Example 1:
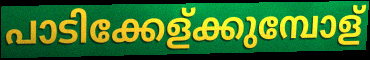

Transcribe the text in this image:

പാടിക്കേള്ക്കുമ്പോള്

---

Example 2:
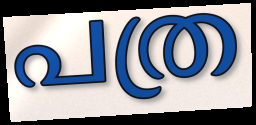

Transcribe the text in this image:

പത്ര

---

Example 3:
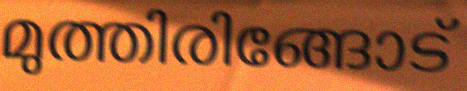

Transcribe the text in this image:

മുത്തിരിങ്ങോട്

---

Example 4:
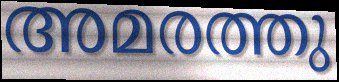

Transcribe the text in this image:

അമരത്തു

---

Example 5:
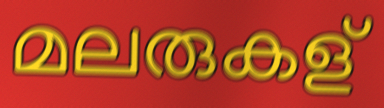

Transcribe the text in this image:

മലരുകള്